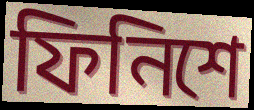
ফিনিশে